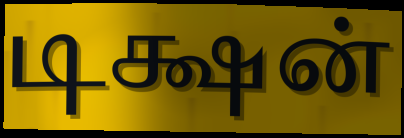
டிக்ஷன்